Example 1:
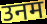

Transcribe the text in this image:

उनम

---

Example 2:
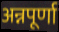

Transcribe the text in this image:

अन्नपूर्णा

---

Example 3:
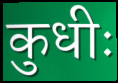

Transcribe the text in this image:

कुधीः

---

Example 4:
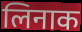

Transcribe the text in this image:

लिनाक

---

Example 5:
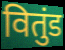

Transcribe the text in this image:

वितुंड